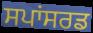
ਸਪਾਂਸਰਡ